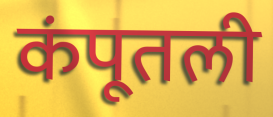
कंपूतली